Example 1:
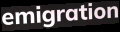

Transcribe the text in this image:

emigration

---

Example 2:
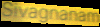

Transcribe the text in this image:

Sivagnanam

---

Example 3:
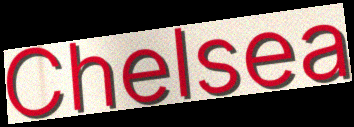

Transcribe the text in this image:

Chelsea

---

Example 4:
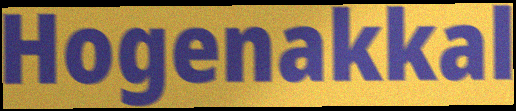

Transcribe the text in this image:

Hogenakkal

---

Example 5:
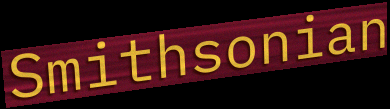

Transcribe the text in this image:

Smithsonian